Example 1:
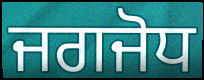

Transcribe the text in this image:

ਜਗਜੋਧ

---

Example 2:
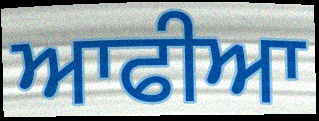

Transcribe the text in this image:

ਆਫੀਆ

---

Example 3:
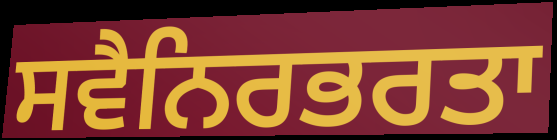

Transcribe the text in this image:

ਸਵੈਨਿਰਭਰਤਾ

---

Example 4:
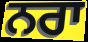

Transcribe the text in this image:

ਨਰਾ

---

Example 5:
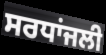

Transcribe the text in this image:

ਸਰਧਾਂਜਲੀ